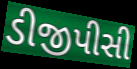
ડીજીપીસી